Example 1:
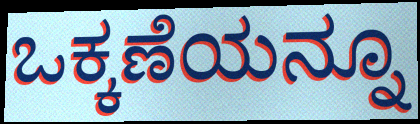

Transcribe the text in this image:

ಒಕ್ಕಣೆಯನ್ನೂ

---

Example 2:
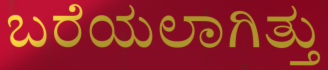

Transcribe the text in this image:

ಬರೆಯಲಾಗಿತ್ತು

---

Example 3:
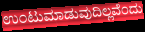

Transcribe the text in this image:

ಉಂಟುಮಾಡುವುದಿಲ್ಲವೆಂದು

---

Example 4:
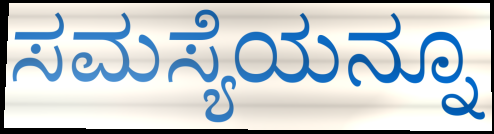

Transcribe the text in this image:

ಸಮಸ್ಯೆಯನ್ನೂ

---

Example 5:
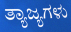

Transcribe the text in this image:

ತ್ಯಾಜ್ಯಗಳು